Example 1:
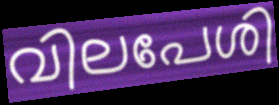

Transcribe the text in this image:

വിലപേശി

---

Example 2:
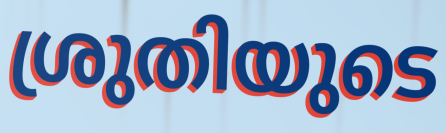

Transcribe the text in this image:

ശ്രുതിയുടെ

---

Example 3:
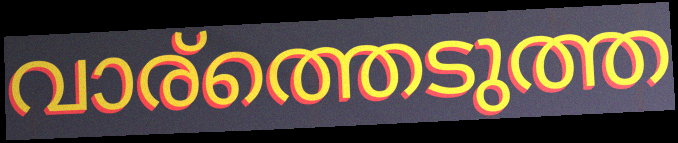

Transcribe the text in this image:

വാര്ത്തെടുത്ത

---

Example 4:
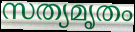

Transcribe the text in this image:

സത്യമൃതം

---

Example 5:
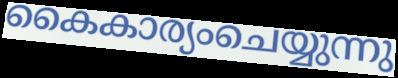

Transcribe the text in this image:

കൈകാര്യംചെയ്യുന്നു